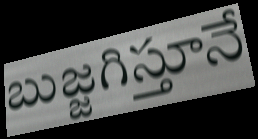
బుజ్జగిస్తూనే